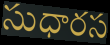
సుధారస